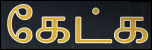
கேட்க